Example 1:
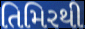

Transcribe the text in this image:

તિમિરથી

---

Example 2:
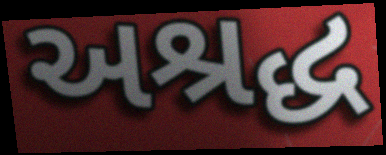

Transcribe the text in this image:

અશ્રદ્ધ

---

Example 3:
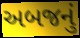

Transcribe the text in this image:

અબજનું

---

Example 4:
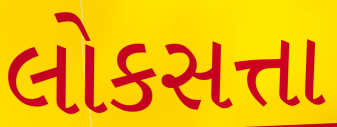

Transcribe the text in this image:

લોકસત્તા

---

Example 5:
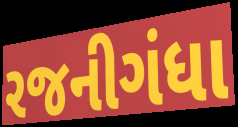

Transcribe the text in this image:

રજનીગંધા